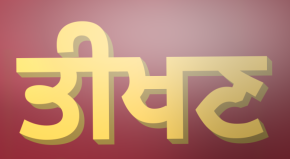
ਤੀਖਣ